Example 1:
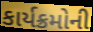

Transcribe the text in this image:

કાર્યક્રમોની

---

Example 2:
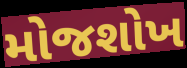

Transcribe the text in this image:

મોજશોખ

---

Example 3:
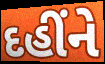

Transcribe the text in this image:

દહીંને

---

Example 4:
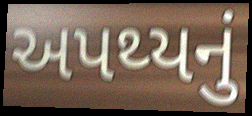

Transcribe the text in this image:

અપથ્યનું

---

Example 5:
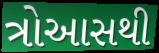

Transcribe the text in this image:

ત્રોઆસથી